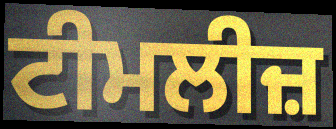
ਟੀਮਲੀਜ਼